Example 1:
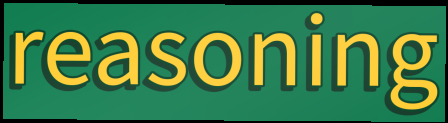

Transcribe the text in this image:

reasoning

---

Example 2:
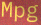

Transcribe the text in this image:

Mpg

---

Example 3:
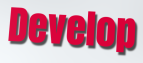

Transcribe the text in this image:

Develop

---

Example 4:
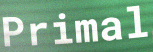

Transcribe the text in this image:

Primal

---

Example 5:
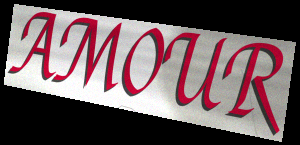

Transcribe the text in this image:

AMOUR